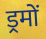
ड्रमों